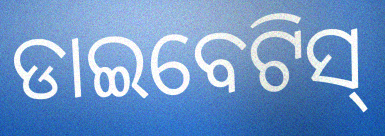
ଡାଇବେଟିସ୍